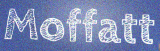
Moffatt